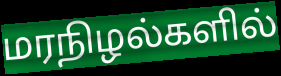
மரநிழல்களில்